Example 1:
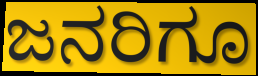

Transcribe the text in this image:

ಜನರಿಗೂ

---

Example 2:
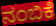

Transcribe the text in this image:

ನಂಬಿಕೆ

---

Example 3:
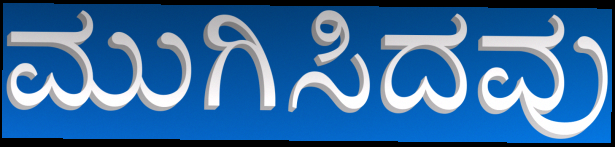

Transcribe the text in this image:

ಮುಗಿಸಿದವು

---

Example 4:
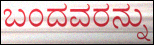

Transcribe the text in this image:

ಬಂದವರನ್ನು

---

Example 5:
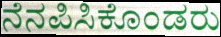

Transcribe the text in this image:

ನೆನಪಿಸಿಕೊಂಡರು